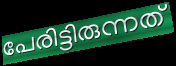
പേരിട്ടിരുന്നത്